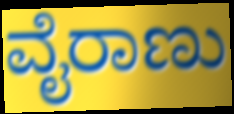
ವೈರಾಣು